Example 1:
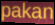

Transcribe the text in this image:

pakan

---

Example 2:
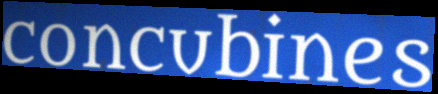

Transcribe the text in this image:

concubines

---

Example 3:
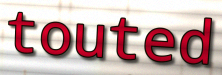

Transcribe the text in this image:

touted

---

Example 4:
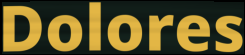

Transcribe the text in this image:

Dolores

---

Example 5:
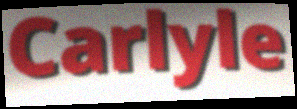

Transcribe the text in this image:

Carlyle